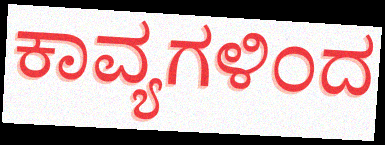
ಕಾವ್ಯಗಳಿಂದ